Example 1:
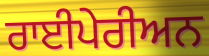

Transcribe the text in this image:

ਰਾਈਪੇਰੀਅਨ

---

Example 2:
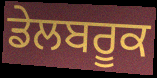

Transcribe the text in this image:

ਡੇਲਬਰੂਕ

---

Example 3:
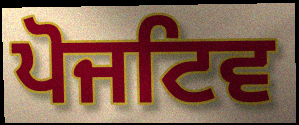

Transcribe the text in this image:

ਪੋਜਟਿਵ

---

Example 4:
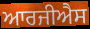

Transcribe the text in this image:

ਆਰਜੀਐਸ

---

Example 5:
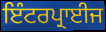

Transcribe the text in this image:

ਇੰਟਰਪ੍ਰਾਈਜ